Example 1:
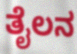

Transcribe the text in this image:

ತೈಲನ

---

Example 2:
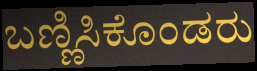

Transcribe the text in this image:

ಬಣ್ಣಿಸಿಕೊಂಡರು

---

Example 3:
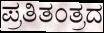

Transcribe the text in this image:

ಪ್ರತಿತಂತ್ರದ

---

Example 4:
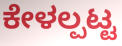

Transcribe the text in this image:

ಕೇಳಲ್ಪಟ್ಟ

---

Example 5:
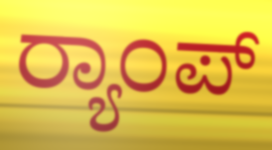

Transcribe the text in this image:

ರ‍್ಯಾಂಪ್